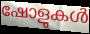
ഷോളുകൾ